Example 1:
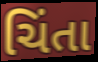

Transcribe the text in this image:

ચિંતા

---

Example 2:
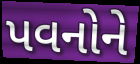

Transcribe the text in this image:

પવનોને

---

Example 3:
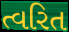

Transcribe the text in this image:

ત્વરિત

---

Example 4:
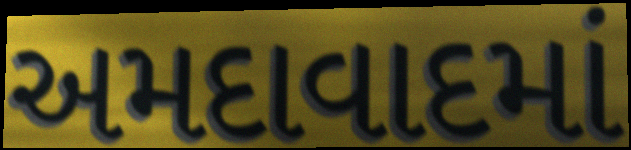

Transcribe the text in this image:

અમદાવાદમાં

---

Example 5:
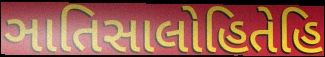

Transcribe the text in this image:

ઞાતિસાલોહિતેહિ